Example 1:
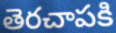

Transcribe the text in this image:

తెరచాపకి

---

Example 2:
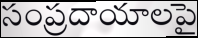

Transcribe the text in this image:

సంప్రదాయాలపై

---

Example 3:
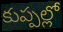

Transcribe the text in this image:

కుప్పల్లో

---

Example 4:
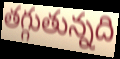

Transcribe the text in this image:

తగ్గుతున్నది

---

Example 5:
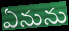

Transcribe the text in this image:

ఏనును